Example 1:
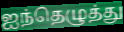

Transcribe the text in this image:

ஐந்தெழுத்து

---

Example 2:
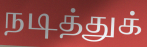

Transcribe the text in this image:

நடித்துக்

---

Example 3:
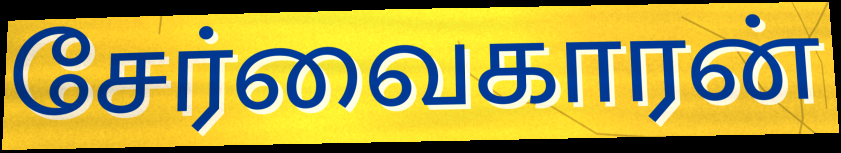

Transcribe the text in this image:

சேர்வைகாரன்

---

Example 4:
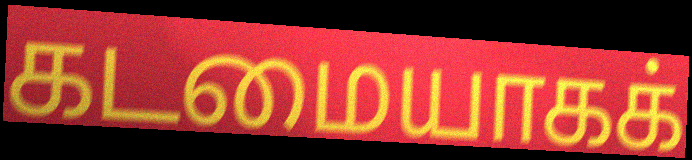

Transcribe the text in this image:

கடமையாகக்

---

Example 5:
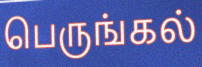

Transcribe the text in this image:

பெருங்கல்